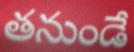
తనుండే